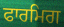
ਫਾਰਮਿਗ